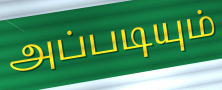
அப்படியும்